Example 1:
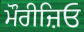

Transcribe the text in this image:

ਮੌਰੀਜ਼ਿਓ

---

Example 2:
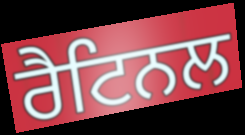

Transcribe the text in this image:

ਰੈਟਿਨਲ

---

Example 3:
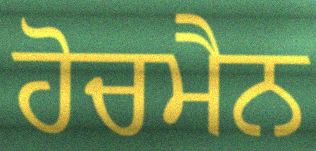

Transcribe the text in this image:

ਹੋਚਮੈਨ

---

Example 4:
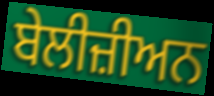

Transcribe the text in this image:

ਬੇਲੀਜ਼ੀਅਨ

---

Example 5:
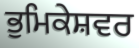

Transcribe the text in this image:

ਭੁਮਿਕੇਸ਼ਵਰ